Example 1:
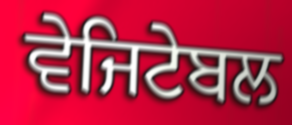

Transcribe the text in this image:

ਵੇਜਿਟੇਬਲ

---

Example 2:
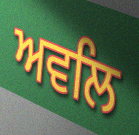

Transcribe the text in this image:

ਅਵਲਿ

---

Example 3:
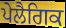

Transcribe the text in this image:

ਪੇਲੈਗਿਕ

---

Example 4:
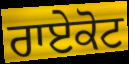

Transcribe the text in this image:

ਰਾਏਕੋਟ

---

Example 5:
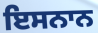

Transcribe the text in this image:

ਇਸਨਾਨ